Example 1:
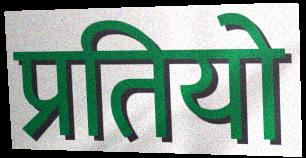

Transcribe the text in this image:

प्रतियो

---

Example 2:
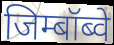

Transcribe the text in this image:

जिम्बॉब्वे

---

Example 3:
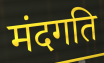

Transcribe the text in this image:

मंदगति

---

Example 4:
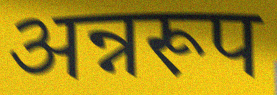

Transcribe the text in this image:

अन्नरूप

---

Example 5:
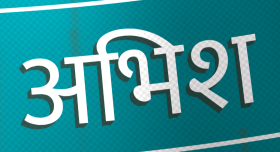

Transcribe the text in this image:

अभिश